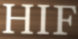
HIF